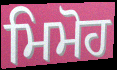
ਮਿਮੋਹ